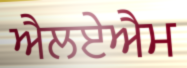
ਐਲਏਐਮ